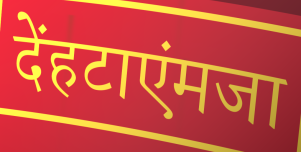
देंहटाएंमजा